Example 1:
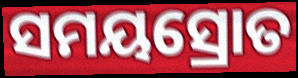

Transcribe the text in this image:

ସମୟସ୍ରୋତ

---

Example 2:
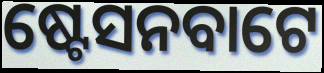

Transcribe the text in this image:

ଷ୍ଟେସନବାଟେ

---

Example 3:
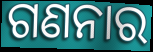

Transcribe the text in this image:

ଗଣନାର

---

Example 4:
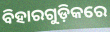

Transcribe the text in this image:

ବିହାରଗୁଡ଼ିକରେ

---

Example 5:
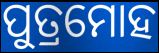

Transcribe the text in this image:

ପୁତ୍ରମୋହ